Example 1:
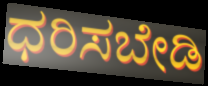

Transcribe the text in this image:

ಧರಿಸಬೇಡಿ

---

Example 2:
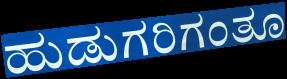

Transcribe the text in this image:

ಹುಡುಗರಿಗಂತೂ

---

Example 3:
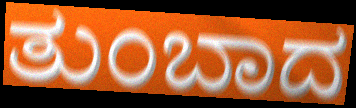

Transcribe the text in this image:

ತುಂಬಾದ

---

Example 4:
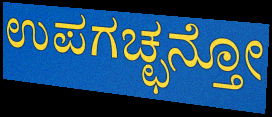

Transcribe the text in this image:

ಉಪಗಚ್ಛನ್ತೋ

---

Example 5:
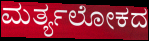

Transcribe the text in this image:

ಮರ್ತ್ಯಲೋಕದ